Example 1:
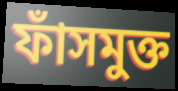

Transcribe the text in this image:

ফাঁসমুক্ত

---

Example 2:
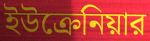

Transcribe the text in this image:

ইউক্রেনিয়ার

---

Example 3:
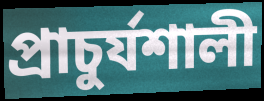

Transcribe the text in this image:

প্রাচুর্যশালী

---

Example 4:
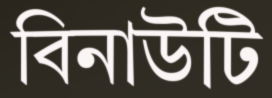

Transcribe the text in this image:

বিনাউটি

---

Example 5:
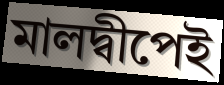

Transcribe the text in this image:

মালদ্বীপেই